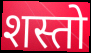
शस्तो